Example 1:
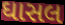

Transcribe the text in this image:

ઘાસલ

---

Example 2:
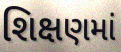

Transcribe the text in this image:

શિક્ષણમાં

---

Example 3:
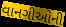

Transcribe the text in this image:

વાનગીઓની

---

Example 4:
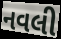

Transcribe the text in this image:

નવલી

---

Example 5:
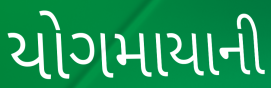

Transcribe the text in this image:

યોગમાયાની